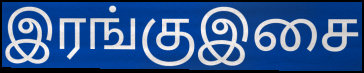
இரங்குஇசை